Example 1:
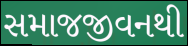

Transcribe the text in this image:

સમાજજીવનથી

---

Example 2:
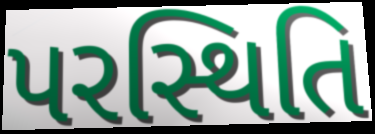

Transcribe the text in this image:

પરસ્થિતિ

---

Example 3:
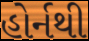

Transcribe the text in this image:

હોર્નથી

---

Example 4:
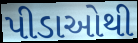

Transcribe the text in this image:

પીડાઓથી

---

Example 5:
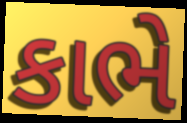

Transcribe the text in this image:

કાભે